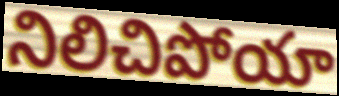
నిలిచిపోయా